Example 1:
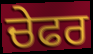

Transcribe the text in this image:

ਚੇਫਰ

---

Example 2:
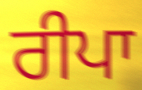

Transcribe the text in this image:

ਰੀਪਾ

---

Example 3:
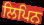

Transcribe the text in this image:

ਲਿਪਿਨ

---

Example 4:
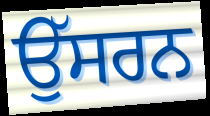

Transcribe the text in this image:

ਉੱਸਰਨ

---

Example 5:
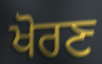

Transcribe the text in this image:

ਖੋਰਣ